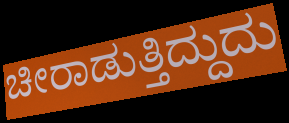
ಚೀರಾಡುತ್ತಿದ್ದುದು